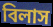
বিলাস